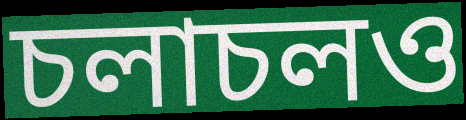
চলাচলও